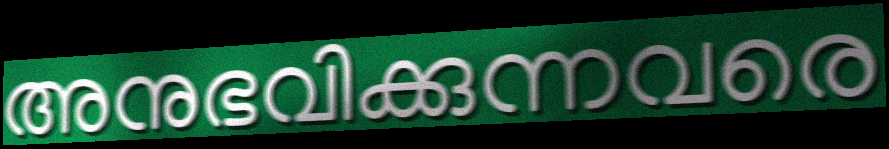
അനുഭവിക്കുന്നവരെ